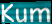
Kum